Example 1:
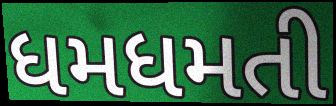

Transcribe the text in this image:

ધમધમતી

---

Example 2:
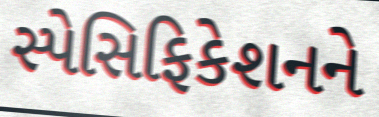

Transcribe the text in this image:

સ્પેસિફિકેશનને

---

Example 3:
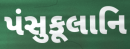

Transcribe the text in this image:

પંસુકૂલાનિ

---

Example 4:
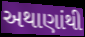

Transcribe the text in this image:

અથાણાંથી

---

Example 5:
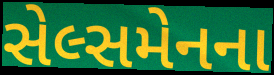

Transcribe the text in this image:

સેલ્સમેનના